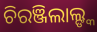
ଚିରଞ୍ଜିଲାଲ୍ଙ୍କ